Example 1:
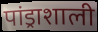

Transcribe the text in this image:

पांड्राशाली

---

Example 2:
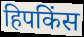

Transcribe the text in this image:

हिपकिंस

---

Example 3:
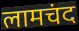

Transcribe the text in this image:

लामचंद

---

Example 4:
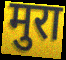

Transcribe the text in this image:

मुरा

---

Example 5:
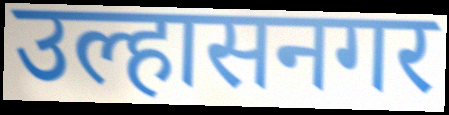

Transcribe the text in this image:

उल्हासनगर